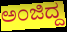
ಅಂಜಿದ್ದ